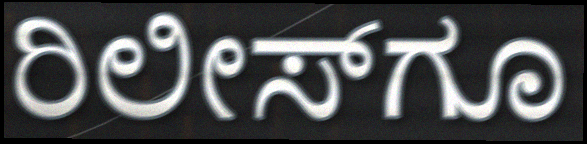
ರಿಲೀಸ್‌ಗೂ